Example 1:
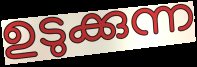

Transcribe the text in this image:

ഉടുക്കുന്ന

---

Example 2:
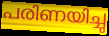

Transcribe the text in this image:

പരിണയിച്ചു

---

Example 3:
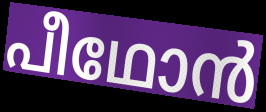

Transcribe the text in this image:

പീഥോൻ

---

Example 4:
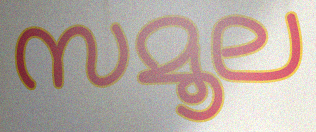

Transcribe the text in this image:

സമൂല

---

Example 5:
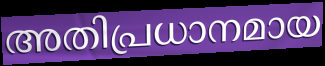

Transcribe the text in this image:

അതിപ്രധാനമായ